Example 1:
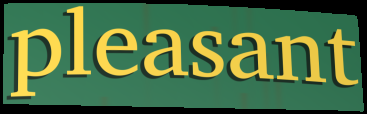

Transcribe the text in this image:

pleasant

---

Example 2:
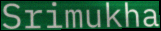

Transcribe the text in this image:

Srimukha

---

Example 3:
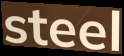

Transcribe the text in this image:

steel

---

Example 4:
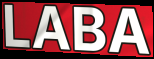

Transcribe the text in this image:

LABA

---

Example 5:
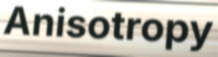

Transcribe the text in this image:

Anisotropy